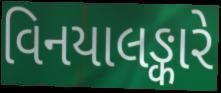
વિનયાલઙ્કારે